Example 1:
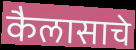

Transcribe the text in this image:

कैलासाचे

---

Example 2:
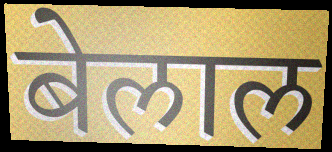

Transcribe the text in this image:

बेलाल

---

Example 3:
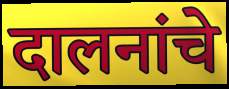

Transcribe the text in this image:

दालनांचे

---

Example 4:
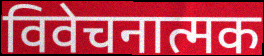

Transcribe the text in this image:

विवेचनात्मक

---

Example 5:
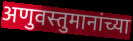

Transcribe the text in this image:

अणुवस्तुमानांच्या